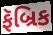
ફૅબ્રિક